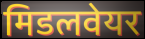
मिडलवेयर